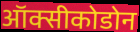
ऑक्सीकोडोन